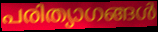
പരിത്യാഗങ്ങൾ